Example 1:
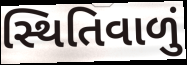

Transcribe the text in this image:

સ્થિતિવાળું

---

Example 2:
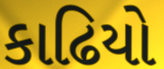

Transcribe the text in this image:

કાઢિયો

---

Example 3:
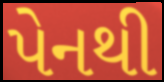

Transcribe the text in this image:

પેનથી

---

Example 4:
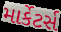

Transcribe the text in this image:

માર્કેટર્સ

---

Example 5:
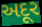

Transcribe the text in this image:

અદૂર